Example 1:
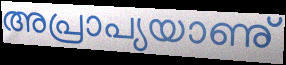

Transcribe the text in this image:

അപ്രാപ്യയാണു്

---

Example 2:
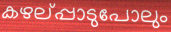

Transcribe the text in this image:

കഴല്പ്പാടുപോലും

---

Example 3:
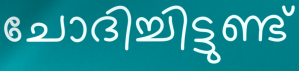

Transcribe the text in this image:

ചോദിച്ചിട്ടുണ്ട്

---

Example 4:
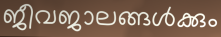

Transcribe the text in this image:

ജീവജാലങ്ങൾക്കും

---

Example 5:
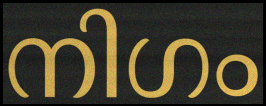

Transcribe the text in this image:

നിഗം